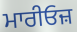
ਮਾਰੀਓਜ਼